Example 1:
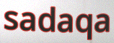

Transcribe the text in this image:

sadaqa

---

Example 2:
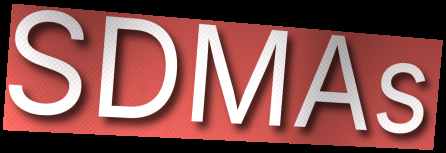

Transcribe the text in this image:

SDMAs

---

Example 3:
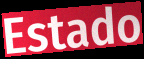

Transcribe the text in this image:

Estado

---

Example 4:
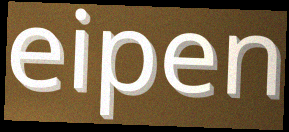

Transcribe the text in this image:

eipen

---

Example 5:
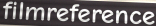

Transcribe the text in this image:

filmreference